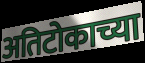
अतिटोकाच्या